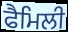
ਫੈਮਿਲੀ